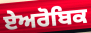
ਏਅਰੋਬਿਕ